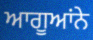
ਆਗੂਆਂਨੇ